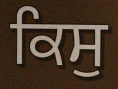
ਕਿਸੁ